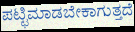
ಪಟ್ಟಿಮಾಡಬೇಕಾಗುತ್ತದೆ